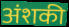
अंशकी